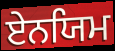
ਏਨਯਿਮ